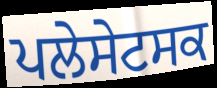
ਪਲੇਸੇਟਸਕ